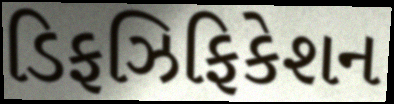
ડિફઝિફિકેશન